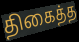
திகைத்த